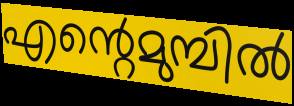
എന്റെമുമ്പിൽ